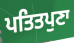
ਪਤਿਤਪੁਣਾ